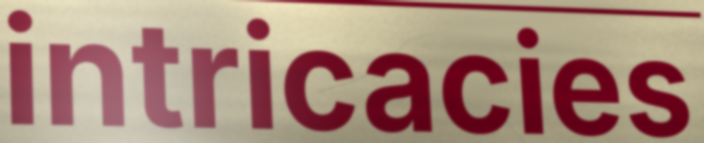
intricacies